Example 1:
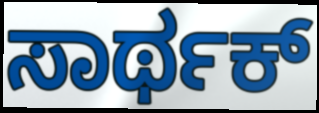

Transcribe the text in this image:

ಸಾರ್ಥಕ್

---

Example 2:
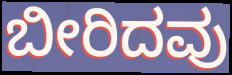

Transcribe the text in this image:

ಬೀರಿದವು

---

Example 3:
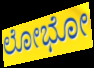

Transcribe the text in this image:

ಲೋಭೋ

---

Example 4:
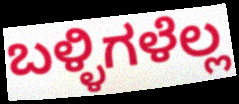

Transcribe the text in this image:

ಬಳ್ಳಿಗಳೆಲ್ಲ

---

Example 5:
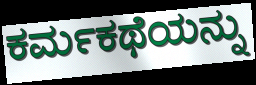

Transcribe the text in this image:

ಕರ್ಮಕಥೆಯನ್ನು